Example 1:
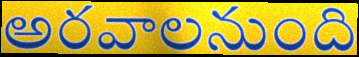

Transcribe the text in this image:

అరవాలనుంది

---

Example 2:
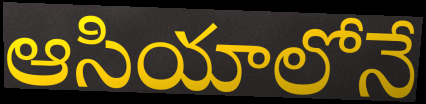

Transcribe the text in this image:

ఆసియాలోనే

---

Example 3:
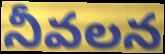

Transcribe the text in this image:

నీవలన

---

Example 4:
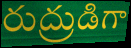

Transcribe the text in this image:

రుద్రుడిగా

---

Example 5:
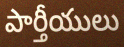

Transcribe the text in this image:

పార్తీయులు